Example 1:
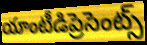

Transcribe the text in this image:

యాంటీడిప్రెసెంట్స్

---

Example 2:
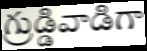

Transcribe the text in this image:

గ్రుడ్డివాడిగా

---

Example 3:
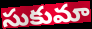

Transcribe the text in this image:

సుకుమా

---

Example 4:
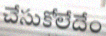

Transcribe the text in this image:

చేసుకోలేదేం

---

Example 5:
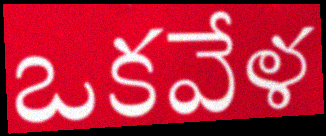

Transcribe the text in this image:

ఒకవేళ